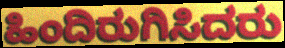
ಹಿಂದಿರುಗಿಸಿದರು